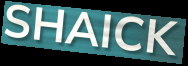
SHAICK